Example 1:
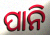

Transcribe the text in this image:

ପାନି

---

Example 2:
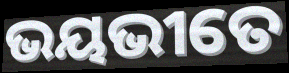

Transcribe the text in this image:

ଭୟଭୀତେ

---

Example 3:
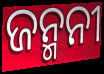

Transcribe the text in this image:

ଜନ୍ମନୀ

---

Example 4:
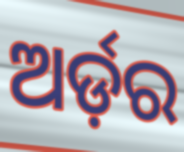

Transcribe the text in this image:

ଅର୍ଡ଼ର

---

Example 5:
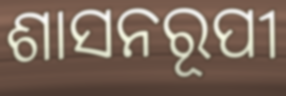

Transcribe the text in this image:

ଶାସନରୂପୀ